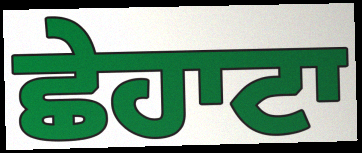
ਛੇਹਾਟਾ